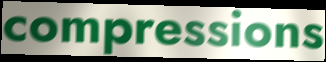
compressions